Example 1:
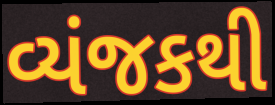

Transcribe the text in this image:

વ્યંજકથી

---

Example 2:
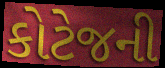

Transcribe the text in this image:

કોટેજની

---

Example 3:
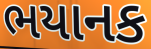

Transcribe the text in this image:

ભયાનક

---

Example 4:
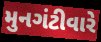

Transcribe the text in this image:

મુનગંટીવારે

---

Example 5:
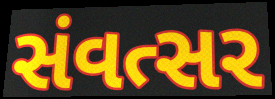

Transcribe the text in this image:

સંવત્સર